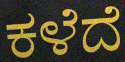
ಕಳೆದೆ